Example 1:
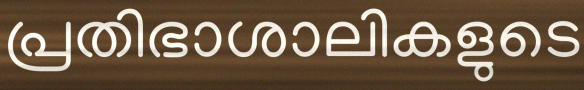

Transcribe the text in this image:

പ്രതിഭാശാലികളുടെ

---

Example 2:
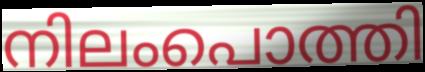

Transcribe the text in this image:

നിലംപൊത്തി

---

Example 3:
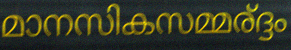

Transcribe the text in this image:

മാനസികസമ്മര്ദ്ദം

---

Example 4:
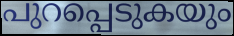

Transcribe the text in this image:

പുറപ്പെടുകയും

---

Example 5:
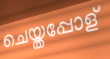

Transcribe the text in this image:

ചെയ്തപ്പോള്